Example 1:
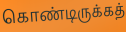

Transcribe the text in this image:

கொண்டிருக்கத்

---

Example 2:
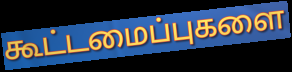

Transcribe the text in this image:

கூட்டமைப்புகளை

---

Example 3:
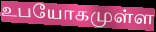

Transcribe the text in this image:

உபயோகமுள்ள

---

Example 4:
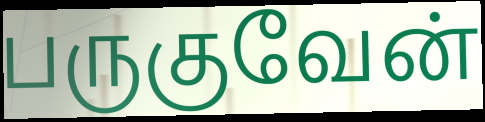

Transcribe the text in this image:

பருகுவேன்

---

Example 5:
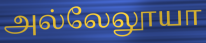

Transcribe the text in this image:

அல்லேலூயா